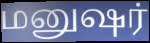
மனுஷர்